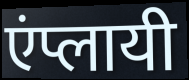
एंप्लायी